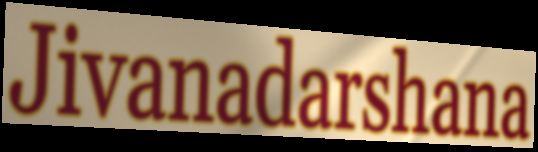
Jivanadarshana